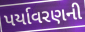
પર્યાવરણની